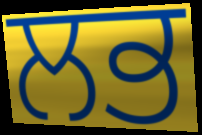
ਲਭ